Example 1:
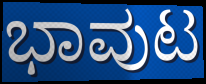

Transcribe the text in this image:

ಭಾವುಟ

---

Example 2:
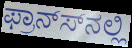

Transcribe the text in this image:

ಫ್ರಾನ್ಸ್‍ನಲ್ಲಿ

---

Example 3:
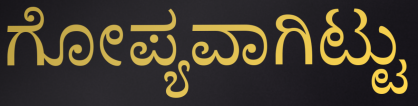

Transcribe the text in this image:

ಗೋಪ್ಯವಾಗಿಟ್ಟು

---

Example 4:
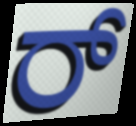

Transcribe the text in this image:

ರ್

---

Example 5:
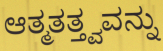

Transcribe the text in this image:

ಆತ್ಮತತ್ತ್ವವನ್ನು